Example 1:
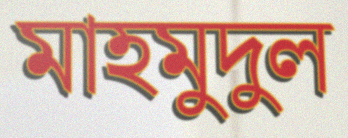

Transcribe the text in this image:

মাহমুদুল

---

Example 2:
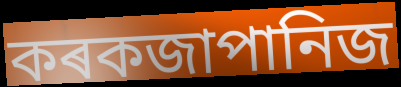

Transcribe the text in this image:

কৰকজাপানিজ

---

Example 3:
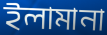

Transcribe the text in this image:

ইলামানা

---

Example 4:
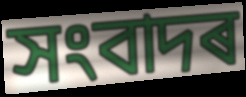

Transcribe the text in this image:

সংবাদৰ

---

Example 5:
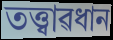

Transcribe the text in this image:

তত্ত্বাৱধান